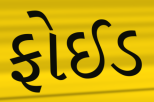
ફોઈડ